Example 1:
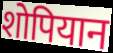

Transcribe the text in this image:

शोपियान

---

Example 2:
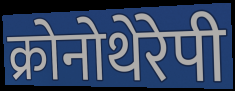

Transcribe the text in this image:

क्रोनोथेरेपी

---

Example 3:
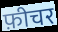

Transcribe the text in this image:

फ़ीचर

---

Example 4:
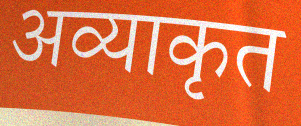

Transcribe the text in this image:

अव्याकृत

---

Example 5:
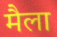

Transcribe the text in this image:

मैला